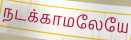
நடக்காமலேயே